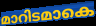
മാറിടമാകെ